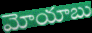
మోయాబు